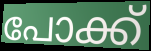
പോക്ക്